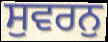
ਸੁਵਰਨੁ